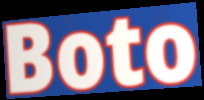
Boto